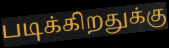
படிக்கிறதுக்கு